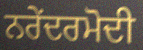
ਨਰੇਂਦਰਮੋਦੀ